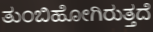
ತುಂಬಿಹೋಗಿರುತ್ತದೆ